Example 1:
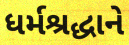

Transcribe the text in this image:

ધર્મશ્રદ્ધાને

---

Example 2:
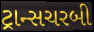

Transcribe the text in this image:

ટ્રાન્સચરબી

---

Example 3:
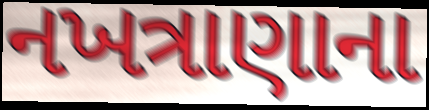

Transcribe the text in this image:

નખત્રાણાના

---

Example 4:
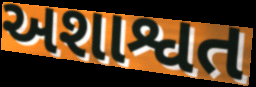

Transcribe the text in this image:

અશાશ્વત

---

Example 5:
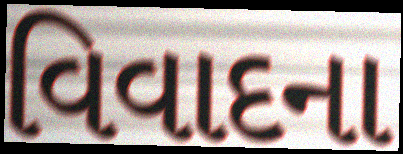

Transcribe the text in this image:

વિવાદના